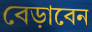
বেড়াবেন